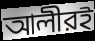
আলীরই